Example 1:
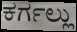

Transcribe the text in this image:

ಕರ್ಗಲ್ಲು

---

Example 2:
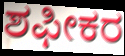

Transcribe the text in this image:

ಶಫೀಕರ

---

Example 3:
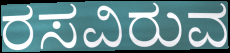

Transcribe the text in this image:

ರಸವಿರುವ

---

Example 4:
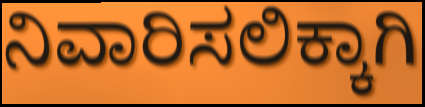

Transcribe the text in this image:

ನಿವಾರಿಸಲಿಕ್ಕಾಗಿ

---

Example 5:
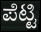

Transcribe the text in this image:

ಪೆಟ್ಟಿ